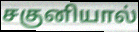
சகுனியால்